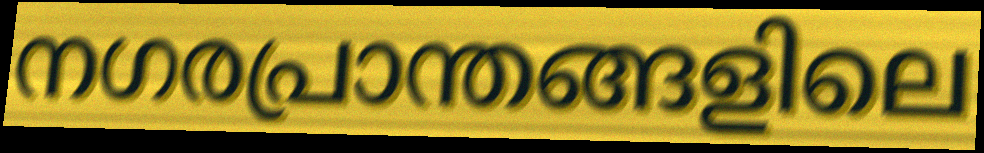
നഗരപ്രാന്തങ്ങളിലെ